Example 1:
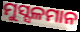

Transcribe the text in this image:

ମୁସ୍ସଳମାନ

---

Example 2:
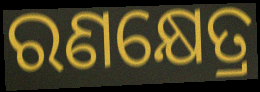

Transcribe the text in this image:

ରଣକ୍ଷେତ୍ର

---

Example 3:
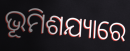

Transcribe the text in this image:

ଭୂମିଶଯ୍ୟାରେ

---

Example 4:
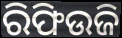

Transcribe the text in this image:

ରିଫିଉଜି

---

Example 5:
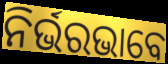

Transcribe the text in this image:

ନିର୍ଭରଭାବେ